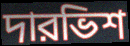
দারভিশ